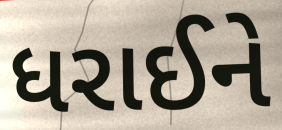
ધરાઈને